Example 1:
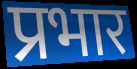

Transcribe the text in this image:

प्रभार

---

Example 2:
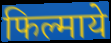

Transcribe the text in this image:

फिल्माये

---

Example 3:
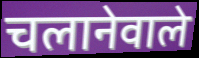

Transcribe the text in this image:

चलानेवाले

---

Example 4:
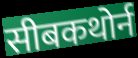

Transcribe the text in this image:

सीबकथोर्न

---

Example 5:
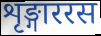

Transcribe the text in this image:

शृङ्गाररस